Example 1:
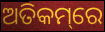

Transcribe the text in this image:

ଅତିକମ୍‌ରେ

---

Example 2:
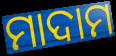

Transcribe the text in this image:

ମାଦାମ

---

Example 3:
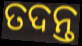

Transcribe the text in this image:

ତଦନ୍ତ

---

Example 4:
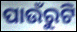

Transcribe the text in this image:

ପାଉଁରୁଟି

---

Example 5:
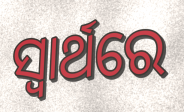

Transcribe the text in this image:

ସ୍ଵାର୍ଥରେ